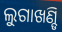
ଲୁଗାଖଣ୍ଡି